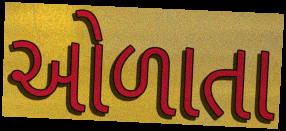
ઓળાતા